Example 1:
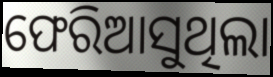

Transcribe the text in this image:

ଫେରିଆସୁଥିଲା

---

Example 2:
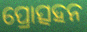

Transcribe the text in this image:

ପ୍ରୋତ୍ସହନ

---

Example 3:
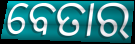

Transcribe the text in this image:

ବେତାର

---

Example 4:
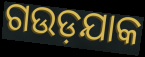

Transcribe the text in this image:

ଗଉଡ଼ଯାକ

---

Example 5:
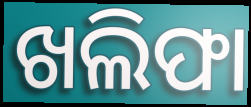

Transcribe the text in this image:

ଖଲିଫା